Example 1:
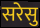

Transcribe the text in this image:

सरेसु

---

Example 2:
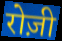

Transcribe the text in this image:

रोज़ी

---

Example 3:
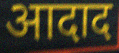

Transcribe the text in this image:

आदाद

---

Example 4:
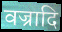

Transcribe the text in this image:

वज्रादि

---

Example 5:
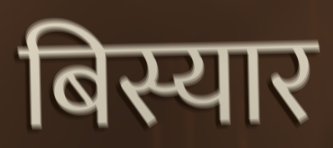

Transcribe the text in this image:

बिस्यार